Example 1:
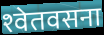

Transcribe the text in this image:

श्वेतवसना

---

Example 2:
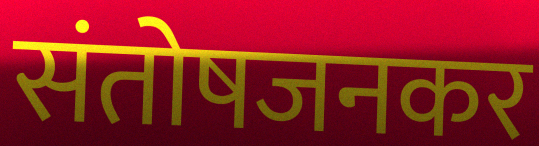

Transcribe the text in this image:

संतोषजनकर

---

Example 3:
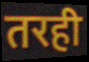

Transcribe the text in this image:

तरही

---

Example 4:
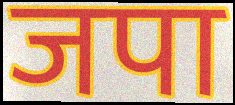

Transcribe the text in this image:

जपा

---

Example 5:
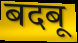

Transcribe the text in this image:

बदबू